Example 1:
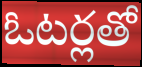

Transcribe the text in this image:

ఓటర్లతో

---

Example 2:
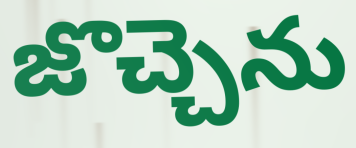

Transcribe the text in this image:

జొచ్చెను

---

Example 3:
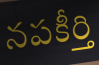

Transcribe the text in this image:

నపకీర్తి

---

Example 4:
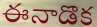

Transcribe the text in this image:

ఈనాడొక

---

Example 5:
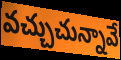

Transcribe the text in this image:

వచ్చుచున్నావే